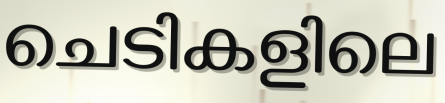
ചെടികളിലെ